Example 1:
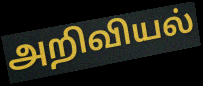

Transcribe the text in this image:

அறிவியல்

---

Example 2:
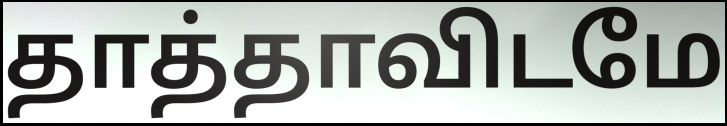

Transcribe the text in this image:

தாத்தாவிடமே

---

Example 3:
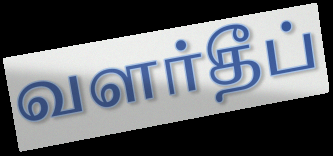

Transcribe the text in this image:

வளர்தீப்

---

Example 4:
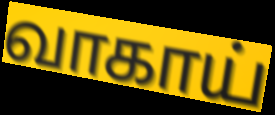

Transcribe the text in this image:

வாகாய்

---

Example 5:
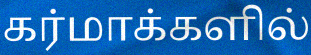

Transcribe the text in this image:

கர்மாக்களில்